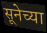
सूनेच्या